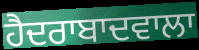
ਹੈਦਰਾਬਾਦਵਾਲਾ